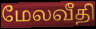
மேலவீதி